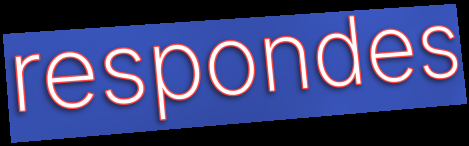
respondes